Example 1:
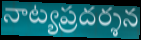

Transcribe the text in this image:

నాట్యప్రదర్శన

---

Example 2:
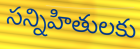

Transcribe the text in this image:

సన్నిహితులకు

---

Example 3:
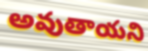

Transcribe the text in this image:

అవుతాయని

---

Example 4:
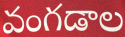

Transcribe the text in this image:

వంగడాల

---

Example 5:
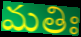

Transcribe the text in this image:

మతిః